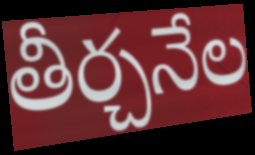
తీర్చనేల